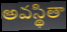
అవస్థితా